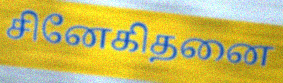
சினேகிதனை